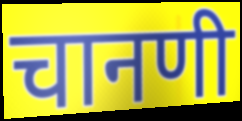
चानणी